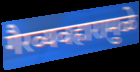
गैरव्यवहारामुळे